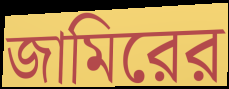
জামিরের